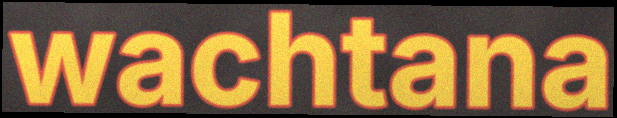
wachtana